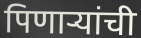
पिणाऱ्यांची